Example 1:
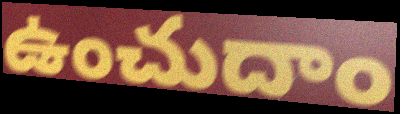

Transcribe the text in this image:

ఉంచుదాం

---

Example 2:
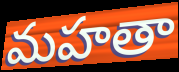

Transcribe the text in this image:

మహతా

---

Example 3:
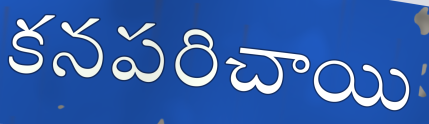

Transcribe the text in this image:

కనపరిచాయి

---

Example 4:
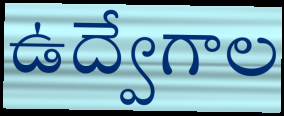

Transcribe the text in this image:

ఉద్వేగాల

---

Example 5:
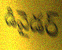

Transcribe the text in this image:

డివైడర్